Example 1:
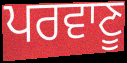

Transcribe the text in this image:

ਪਰਵਾਣੂ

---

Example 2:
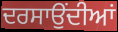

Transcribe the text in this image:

ਦਰਸਾਉਂਦੀਆਂ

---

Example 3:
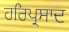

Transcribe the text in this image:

ਹਰਿਪ੍ਰਸਾਦ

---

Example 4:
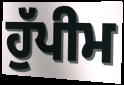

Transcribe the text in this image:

ਹੁੱਪੀਮ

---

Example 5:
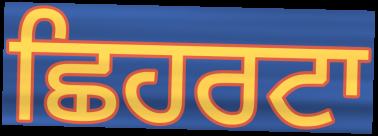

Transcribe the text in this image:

ਛਿਹਰਟਾ